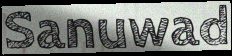
Sanuwad